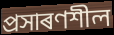
প্ৰসাৰণশীল